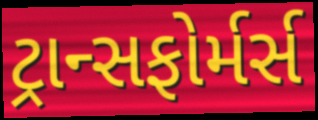
ટ્રાન્સફોર્મર્સ